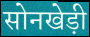
सोनखेड़ी